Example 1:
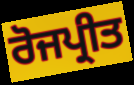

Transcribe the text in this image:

ਰੋਜਪ੍ਰੀਤ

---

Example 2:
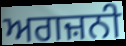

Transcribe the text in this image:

ਅਗਜ਼ਨੀ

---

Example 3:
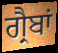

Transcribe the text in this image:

ਗ੍ਰੈਬਾਂ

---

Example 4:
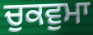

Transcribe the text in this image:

ਚੁਕਵੁਮਾ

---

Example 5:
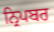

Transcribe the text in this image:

ਨ੍ਰਿਪਬਰ